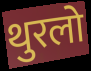
थुरलो